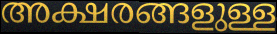
അക്ഷരങ്ങളുള്ള